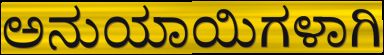
ಅನುಯಾಯಿಗಳಾಗಿ